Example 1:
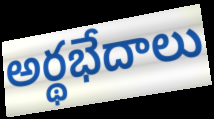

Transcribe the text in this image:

అర్థభేదాలు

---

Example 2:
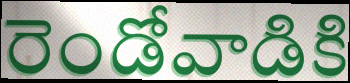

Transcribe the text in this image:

రెండోవాడికి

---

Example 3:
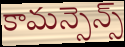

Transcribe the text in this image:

కామన్సెన్స్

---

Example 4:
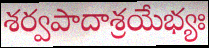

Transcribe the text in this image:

శర్వపాదాశ్రయేభ్యః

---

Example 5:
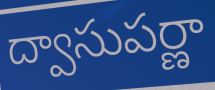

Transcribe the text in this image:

ద్వాసుపర్ణా